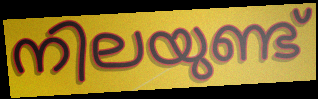
നിലയുണ്ട്